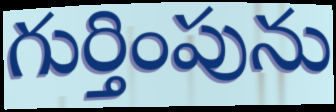
గుర్తింపును